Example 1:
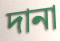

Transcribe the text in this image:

দানা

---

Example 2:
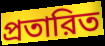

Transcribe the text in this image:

প্রতারিত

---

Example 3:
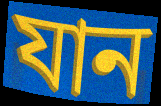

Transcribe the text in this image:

যান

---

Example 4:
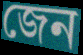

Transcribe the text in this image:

জেন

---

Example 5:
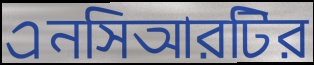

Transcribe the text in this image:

এনসিআরটির